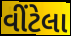
વીંટેલા